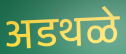
अडथळे